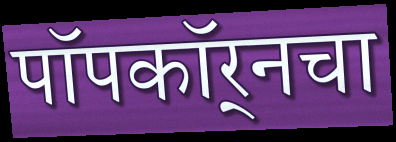
पॉपकॉर्नचा